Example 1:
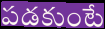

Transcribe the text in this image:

పడకుంటే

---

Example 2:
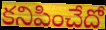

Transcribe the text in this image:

కనిపించేదో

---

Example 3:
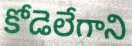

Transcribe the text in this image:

కోడెలేగాని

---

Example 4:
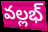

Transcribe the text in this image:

వల్లభ్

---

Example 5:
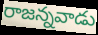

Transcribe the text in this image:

రాజన్నవాడు